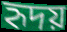
হৃদয়